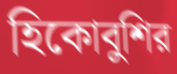
হিকোবুশির